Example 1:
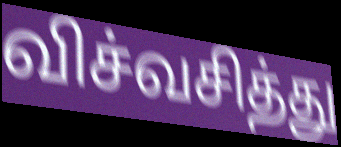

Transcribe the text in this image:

விச்வசித்து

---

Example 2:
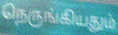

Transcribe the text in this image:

நெருங்கியதும்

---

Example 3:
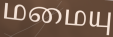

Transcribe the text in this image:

மமையு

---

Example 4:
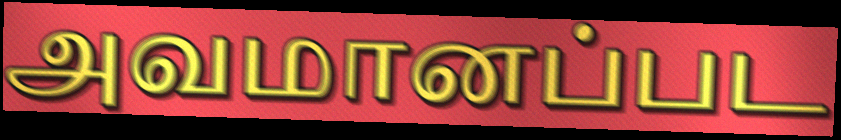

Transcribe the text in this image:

அவமானப்பட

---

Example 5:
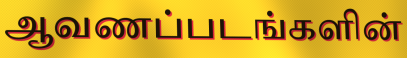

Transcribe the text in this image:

ஆவணப்படங்களின்